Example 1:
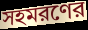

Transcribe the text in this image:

সহমরণের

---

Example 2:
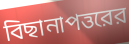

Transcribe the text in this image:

বিছানাপত্তরের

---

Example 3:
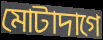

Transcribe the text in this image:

মোটাদাগে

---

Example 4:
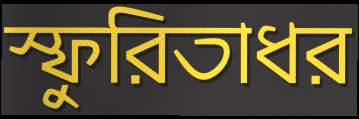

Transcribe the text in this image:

স্ফুরিতাধর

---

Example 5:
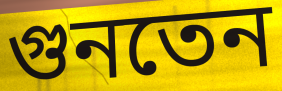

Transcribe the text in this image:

গুনতেন